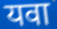
यवा